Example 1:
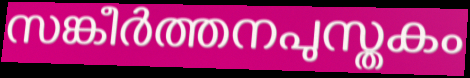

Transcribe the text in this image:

സങ്കീർത്തനപുസ്തകം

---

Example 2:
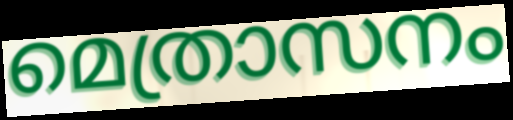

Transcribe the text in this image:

മെത്രാസനം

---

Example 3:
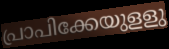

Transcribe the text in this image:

പ്രാപിക്കേയുളളു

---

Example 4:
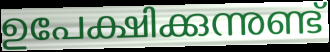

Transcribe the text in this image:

ഉപേക്ഷിക്കുന്നുണ്ട്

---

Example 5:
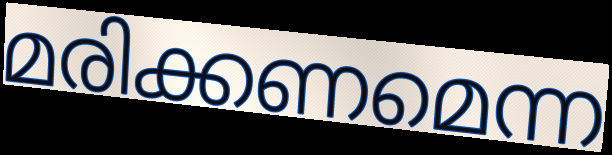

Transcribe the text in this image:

മരിക്കണമെന്ന